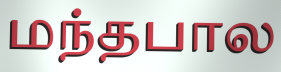
மந்தபால